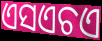
ଏସଏଚଏ